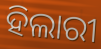
ହିଲାରୀ